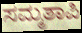
ಸಮ್ಮತಾಪಿ